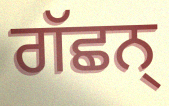
ਗੱਛਨ੍